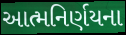
આત્મનિર્ણયના